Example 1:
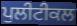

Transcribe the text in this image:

ਪੁਲੀਟੀਕਲ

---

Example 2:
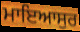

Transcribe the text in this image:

ਮਾਇਆਸੁਰ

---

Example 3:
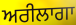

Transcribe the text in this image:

ਅਰੀਲਾਗਾ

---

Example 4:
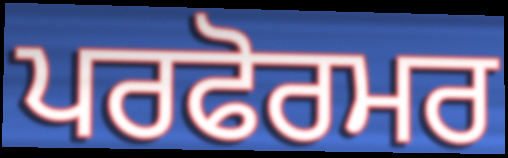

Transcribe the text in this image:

ਪਰਫੋਰਮਰ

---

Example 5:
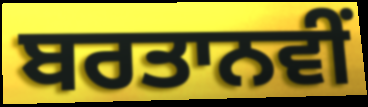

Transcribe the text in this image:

ਬਰਤਾਨਵੀਂ